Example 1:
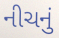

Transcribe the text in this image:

નીચનું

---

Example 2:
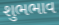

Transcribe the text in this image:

શુભભાવ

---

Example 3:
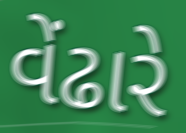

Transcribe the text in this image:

વેંઢારે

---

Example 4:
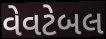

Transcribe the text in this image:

વેવટેબલ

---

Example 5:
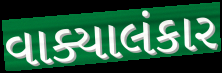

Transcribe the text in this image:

વાક્યાલંકાર